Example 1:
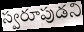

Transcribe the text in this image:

స్వరూపుడని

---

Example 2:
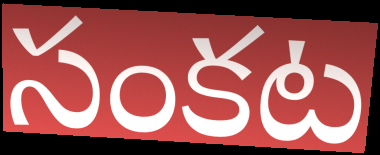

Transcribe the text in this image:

సంకట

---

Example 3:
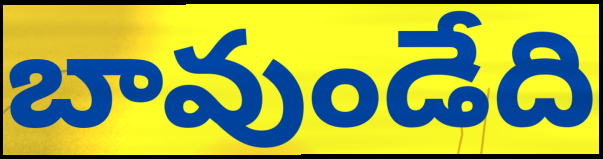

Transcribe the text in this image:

బావుండేది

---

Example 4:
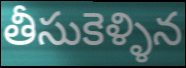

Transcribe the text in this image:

తీసుకెళ్ళిన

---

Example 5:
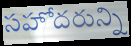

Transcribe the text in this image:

సహోదరున్ని